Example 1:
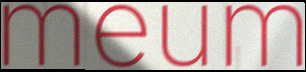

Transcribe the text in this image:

meum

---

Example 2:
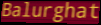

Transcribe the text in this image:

Balurghat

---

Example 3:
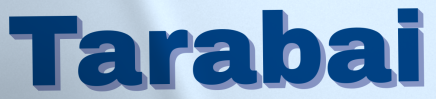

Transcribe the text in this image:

Tarabai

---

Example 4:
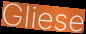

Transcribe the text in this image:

Gliese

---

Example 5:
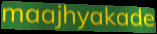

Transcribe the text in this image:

maajhyakade